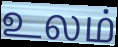
உலம்